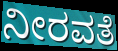
ನೀರವತೆ